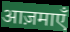
आज़माएँ